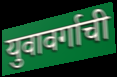
युवावर्गाची